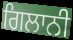
ਗਿਲਾਨੀ